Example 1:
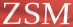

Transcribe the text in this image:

ZSM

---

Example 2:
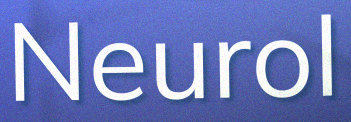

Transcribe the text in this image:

Neurol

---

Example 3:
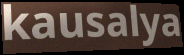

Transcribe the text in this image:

kausalya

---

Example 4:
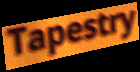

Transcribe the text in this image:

Tapestry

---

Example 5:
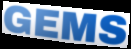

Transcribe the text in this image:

GEMS